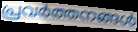
പ്രവർത്തനങ്ങൾ